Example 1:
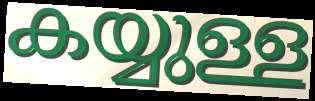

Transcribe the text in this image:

കയ്യുള്ള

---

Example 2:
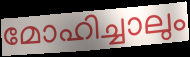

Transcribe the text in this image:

മോഹിച്ചാലും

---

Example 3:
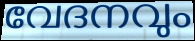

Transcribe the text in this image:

വേദനവും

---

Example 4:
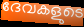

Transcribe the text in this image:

ദേവകളുടെ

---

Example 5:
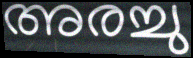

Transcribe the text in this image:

അരച്ചു